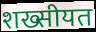
शख्सीयत